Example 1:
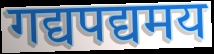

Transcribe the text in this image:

गद्यपद्यमय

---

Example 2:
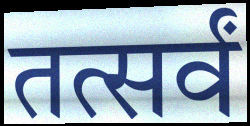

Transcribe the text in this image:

तत्सर्वं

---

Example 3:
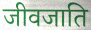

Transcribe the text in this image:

जीवजाति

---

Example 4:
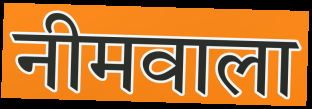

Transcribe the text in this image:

नीमवाला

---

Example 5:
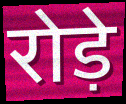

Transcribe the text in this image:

रोड़े